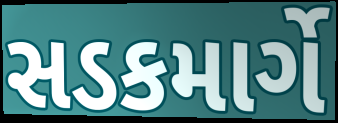
સડકમાર્ગે